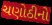
ચણોઠીનો